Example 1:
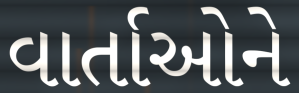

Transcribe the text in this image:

વાર્તાઓને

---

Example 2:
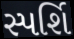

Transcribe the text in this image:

સ્પર્શિ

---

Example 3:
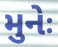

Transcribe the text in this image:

મુનેઃ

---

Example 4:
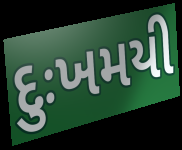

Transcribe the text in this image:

દુઃખમયી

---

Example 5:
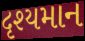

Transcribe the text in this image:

દૃશ્યમાન